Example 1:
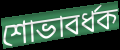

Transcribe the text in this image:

শোভাবর্ধক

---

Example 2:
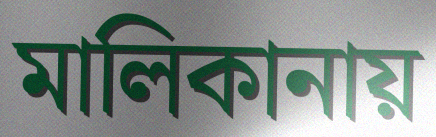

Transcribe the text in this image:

মালিকানায়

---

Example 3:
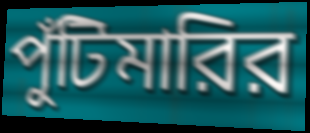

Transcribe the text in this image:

পুঁটিমারির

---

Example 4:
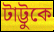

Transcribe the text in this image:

টাট্টুকে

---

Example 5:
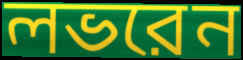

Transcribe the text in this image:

লভরেন